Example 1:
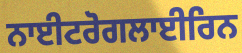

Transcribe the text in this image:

ਨਾਈਟਰੋਗਲਾਈਰਿਨ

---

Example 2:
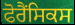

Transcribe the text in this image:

ਫੋਰੈਂਸਿਕਸ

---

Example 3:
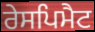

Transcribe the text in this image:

ਰੇਸਪਿਮੈਟ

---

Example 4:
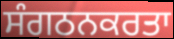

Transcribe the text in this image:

ਸੰਗਠਨਕਰਤਾ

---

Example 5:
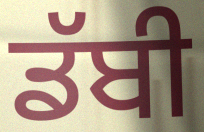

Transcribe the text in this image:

ਡੱਬੀ